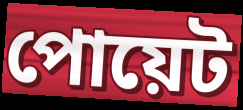
পোয়েট